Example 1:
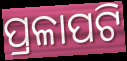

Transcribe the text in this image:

ପ୍ରଳାପଟି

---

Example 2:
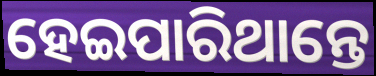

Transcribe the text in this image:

ହେଇପାରିଥାନ୍ତେ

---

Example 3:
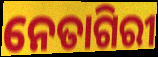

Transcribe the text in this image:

ନେତାଗିରୀ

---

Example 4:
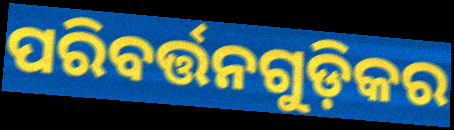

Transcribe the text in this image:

ପରିବର୍ତ୍ତନଗୁଡ଼ିକର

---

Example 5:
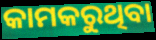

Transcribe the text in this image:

କାମକରୁଥିବା